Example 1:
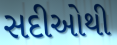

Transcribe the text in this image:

સદીઓથી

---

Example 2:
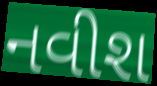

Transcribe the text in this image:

નવીશ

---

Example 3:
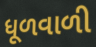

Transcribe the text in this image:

ધૂળવાળી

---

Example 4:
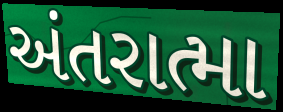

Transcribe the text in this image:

અંતરાત્મા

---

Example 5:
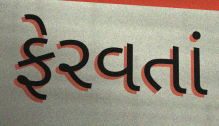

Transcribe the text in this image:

ફેરવતાં